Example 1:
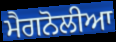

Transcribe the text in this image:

ਮੈਗਨੋਲੀਆ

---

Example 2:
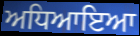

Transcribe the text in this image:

ਅਧਿਆਇਆ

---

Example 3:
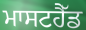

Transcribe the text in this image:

ਮਾਸਟਹੈੱਡ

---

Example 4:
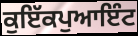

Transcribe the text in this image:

ਕੁਇੱਕਪੁਆਇੰਟ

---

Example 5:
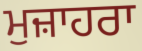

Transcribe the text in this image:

ਮੁਜ਼ਾਹਰਾ